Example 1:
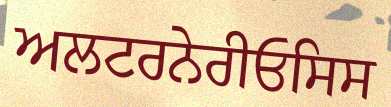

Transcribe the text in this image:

ਅਲਟਰਨੇਰੀਓਸਿਸ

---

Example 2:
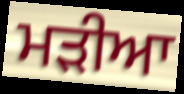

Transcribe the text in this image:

ਮਡ਼ੀਆ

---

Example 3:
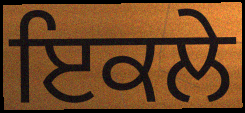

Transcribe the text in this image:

ਇਕਲੇ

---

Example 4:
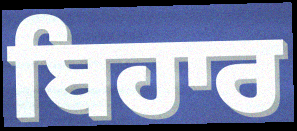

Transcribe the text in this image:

ਬਿਹਾਰ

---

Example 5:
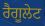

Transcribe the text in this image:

ਰੈਗੂਲੇਟ